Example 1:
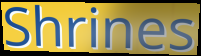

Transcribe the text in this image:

Shrines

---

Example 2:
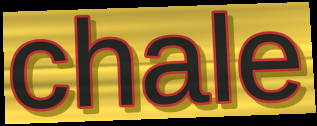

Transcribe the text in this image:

chale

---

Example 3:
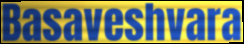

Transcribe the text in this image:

Basaveshvara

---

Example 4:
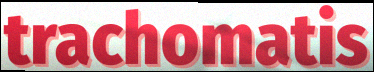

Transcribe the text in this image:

trachomatis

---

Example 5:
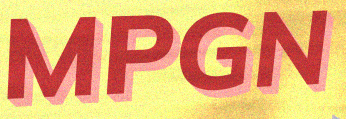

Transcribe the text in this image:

MPGN